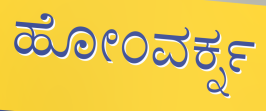
ಹೋಂವರ್ಕ್ನ